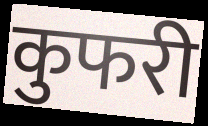
कुफरी